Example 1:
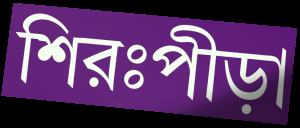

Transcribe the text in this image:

শিরঃপীড়া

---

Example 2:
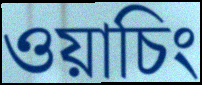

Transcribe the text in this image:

ওয়াচিং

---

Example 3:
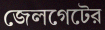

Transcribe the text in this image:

জেলগেটের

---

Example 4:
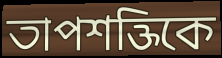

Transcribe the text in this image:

তাপশক্তিকে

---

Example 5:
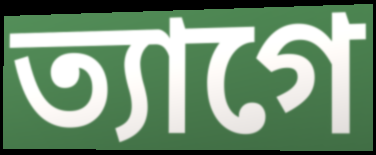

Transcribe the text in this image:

ত্যাগে